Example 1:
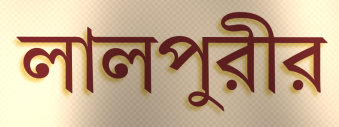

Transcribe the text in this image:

লালপুরীর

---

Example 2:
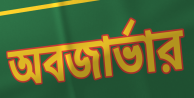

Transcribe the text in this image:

অবজার্ভার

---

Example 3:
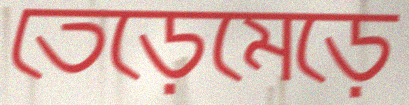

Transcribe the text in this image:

তেড়েমেড়ে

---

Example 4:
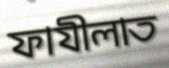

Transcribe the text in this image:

ফাযীলাত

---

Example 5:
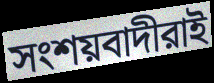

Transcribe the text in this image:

সংশয়বাদীরাই